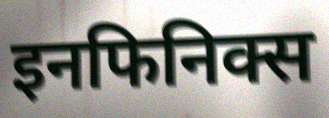
इनफिनिक्स